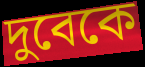
দুবেকে